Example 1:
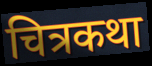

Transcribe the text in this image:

चित्रकथा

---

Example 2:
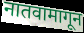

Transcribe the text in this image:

नातवामागून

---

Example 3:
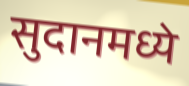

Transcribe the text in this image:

सुदानमध्ये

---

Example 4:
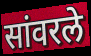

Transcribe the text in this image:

सांवरले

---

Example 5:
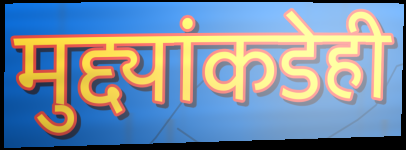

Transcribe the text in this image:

मुद्द्यांकडेही